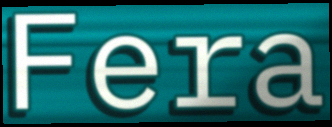
Fera